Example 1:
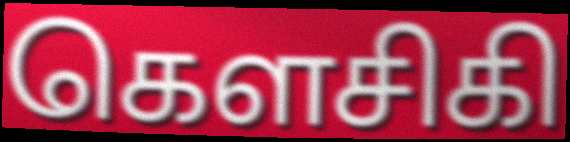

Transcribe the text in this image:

கௌசிகி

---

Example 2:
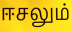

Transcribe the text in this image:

ஈசலும்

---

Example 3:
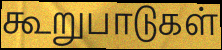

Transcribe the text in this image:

கூறுபாடுகள்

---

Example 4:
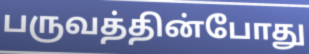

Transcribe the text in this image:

பருவத்தின்போது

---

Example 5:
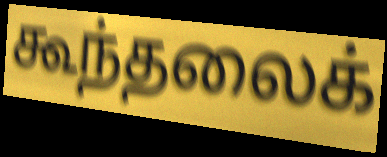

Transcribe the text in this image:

கூந்தலைக்